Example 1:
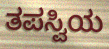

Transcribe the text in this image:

ತಪಸ್ವಿಯ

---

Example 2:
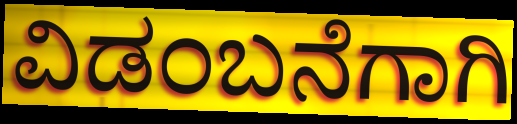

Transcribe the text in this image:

ವಿಡಂಬನೆಗಾಗಿ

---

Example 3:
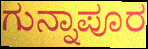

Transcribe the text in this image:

ಗುನ್ನಾಪೂರ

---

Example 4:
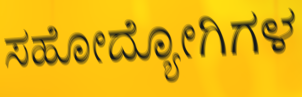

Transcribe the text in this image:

ಸಹೋದ್ಯೋಗಿಗಳ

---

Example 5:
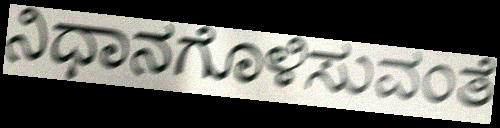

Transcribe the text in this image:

ನಿಧಾನಗೊಳಿಸುವಂತೆ